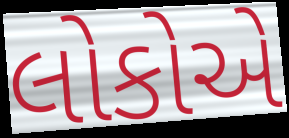
લોકોએ